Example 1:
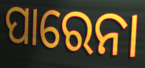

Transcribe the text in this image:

ପାରେନା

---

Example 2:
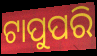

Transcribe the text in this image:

ଟାପୁପରି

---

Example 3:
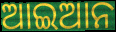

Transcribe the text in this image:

ଆଇଆନ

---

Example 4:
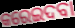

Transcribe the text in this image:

କରେଇଦବା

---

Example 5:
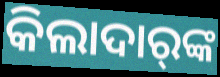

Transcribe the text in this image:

କିଲାଦାର୍‍ଙ୍କ